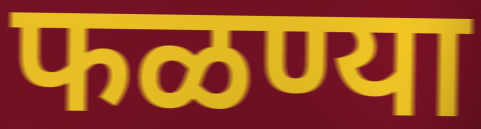
फळण्या